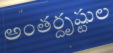
అంతర్దృష్టుల